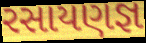
રસાયણજ્ઞ